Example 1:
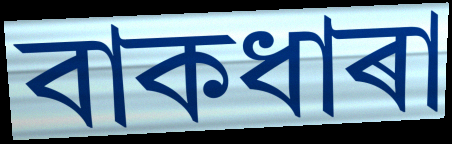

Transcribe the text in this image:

বাকধাৰা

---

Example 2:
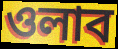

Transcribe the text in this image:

ওলাব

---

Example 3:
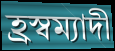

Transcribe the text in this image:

হ্ৰস্বম্যাদী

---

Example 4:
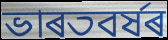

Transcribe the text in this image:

ভাৰতবৰ্ষৰ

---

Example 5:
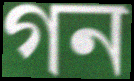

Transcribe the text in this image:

গন